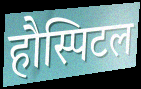
हौस्पिटल